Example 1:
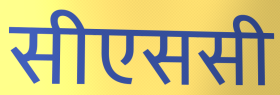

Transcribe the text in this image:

सीएससी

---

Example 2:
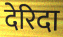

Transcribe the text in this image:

देरिदा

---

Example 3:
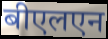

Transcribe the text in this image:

बीएलएन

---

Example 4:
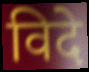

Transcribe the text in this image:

विदे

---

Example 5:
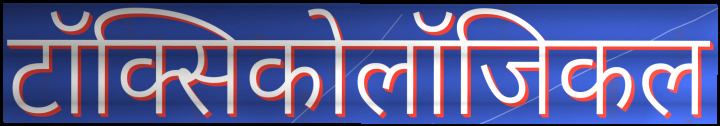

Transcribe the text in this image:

टॉक्सिकोलॉजिकल